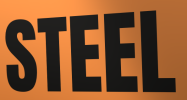
STEEL